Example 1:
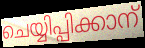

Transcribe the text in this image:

ചെയ്യിപ്പിക്കാന്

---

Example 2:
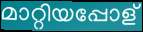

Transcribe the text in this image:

മാറ്റിയപ്പോള്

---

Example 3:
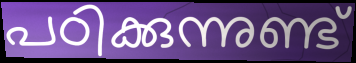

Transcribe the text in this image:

പഠിക്കുന്നുണ്ട്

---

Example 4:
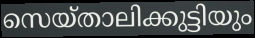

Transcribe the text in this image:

സെയ്താലിക്കുട്ടിയും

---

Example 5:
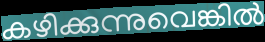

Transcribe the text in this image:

കഴിക്കുന്നുവെങ്കിൽ